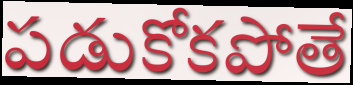
పడుకోకపోతే